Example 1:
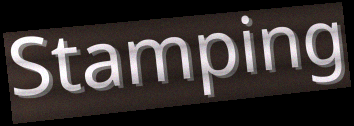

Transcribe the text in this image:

Stamping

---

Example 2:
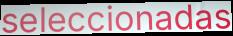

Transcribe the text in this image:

seleccionadas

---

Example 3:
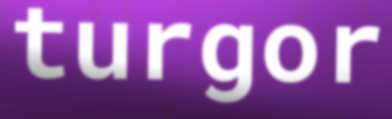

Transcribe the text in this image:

turgor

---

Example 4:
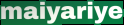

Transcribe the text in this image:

maiyariye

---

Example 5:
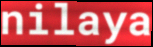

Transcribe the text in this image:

nilaya